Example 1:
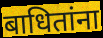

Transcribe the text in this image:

बाधितांना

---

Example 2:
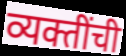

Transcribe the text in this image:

व्यक्‍तींची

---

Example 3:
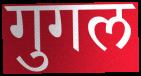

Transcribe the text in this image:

गुगल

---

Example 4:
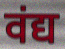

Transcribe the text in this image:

वंद्य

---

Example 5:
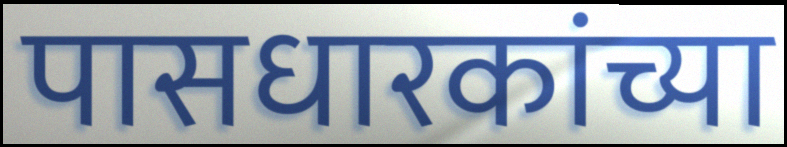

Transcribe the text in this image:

पासधारकांच्या